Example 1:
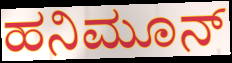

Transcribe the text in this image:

ಹನಿಮೂನ್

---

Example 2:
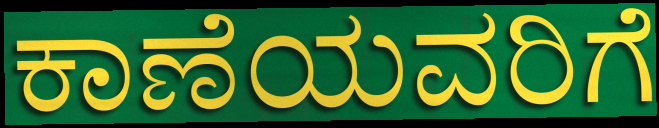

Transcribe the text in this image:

ಕಾಣೆಯವರಿಗೆ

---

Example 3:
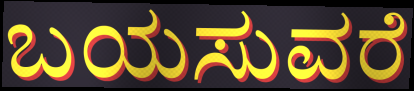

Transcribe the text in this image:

ಬಯಸುವರೆ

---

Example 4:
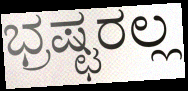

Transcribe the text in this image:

ಭ್ರಷ್ಟರಲ್ಲ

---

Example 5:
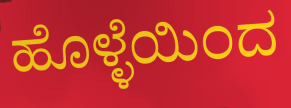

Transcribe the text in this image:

ಹೊಳ್ಳೆಯಿಂದ